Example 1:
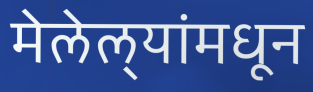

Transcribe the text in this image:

मेलेल्यांमधून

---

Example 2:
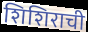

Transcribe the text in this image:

शिशिराची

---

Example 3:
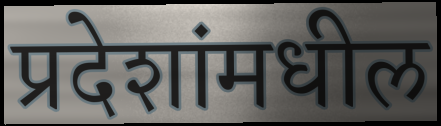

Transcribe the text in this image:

प्रदेशांमधील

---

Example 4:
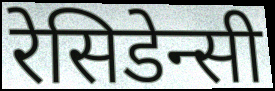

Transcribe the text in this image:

रेसिडेन्सी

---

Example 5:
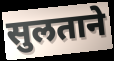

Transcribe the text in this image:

सुलताने